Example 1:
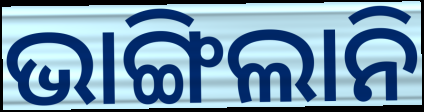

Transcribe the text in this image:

ଭାଙ୍ଗିଲାନି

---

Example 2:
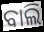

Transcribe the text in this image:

ବାଲି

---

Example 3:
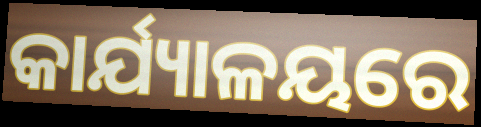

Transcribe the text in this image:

କାର୍ଯ୍ୟାଳୟରେ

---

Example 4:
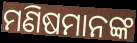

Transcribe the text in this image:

ମଣିଷମାନଙ୍କ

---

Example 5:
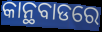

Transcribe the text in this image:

କାନ୍ଥବାଡରେ